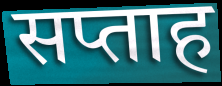
सप्‍ताह